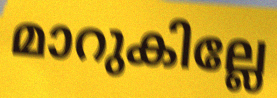
മാറുകില്ലേ